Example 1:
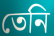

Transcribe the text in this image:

তেনি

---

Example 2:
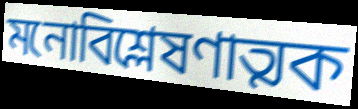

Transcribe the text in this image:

মনোবিশ্লেষণাত্মক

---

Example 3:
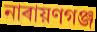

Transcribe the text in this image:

নাৰায়ণগঞ্জ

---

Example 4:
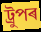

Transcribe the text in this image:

ট্ৰুপৰ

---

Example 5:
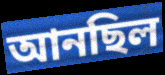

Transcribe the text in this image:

আনছিল